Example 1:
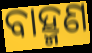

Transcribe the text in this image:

ବାହ୍ମଣ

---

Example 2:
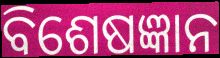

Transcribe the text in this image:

ବିଶେଷଜ୍ଞାନ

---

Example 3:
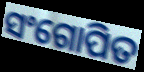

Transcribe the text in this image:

ସଂଗୋପିତ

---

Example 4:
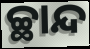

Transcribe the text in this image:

ଚ୍ଛାନ୍ଦ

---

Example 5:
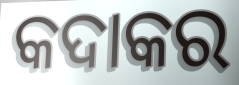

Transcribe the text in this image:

କଦାକର